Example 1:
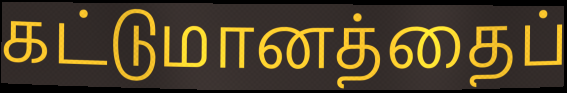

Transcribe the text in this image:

கட்டுமானத்தைப்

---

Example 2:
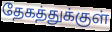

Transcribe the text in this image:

தேகத்துக்குள்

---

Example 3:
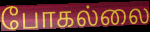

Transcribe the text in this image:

போகல்லை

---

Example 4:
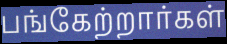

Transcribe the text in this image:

பங்கேற்றார்கள்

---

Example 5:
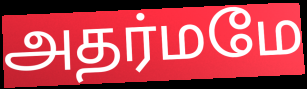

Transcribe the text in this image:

அதர்மமே